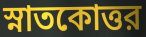
স্নাতকোত্তর